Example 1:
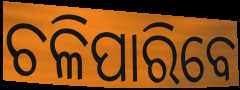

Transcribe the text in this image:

ଚଳିପାରିବେ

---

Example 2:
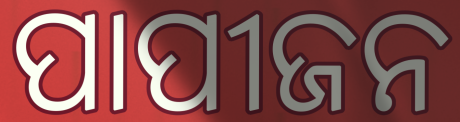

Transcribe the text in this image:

ପାପୀଜନ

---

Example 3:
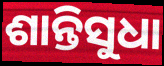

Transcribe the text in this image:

ଶାନ୍ତିସୁଧା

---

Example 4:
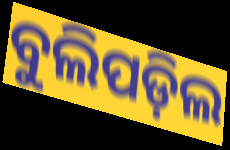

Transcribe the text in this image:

ବୁଲିପଡ଼ିଲ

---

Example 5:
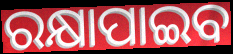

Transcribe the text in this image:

ରକ୍ଷାପାଇବ